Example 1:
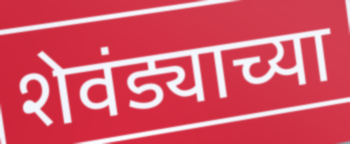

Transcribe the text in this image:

शेवंड्याच्या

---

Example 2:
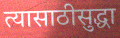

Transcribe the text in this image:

त्यासाठीसुद्धा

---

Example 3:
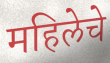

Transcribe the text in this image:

महिलेचे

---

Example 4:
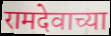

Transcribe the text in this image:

रामदेवाच्या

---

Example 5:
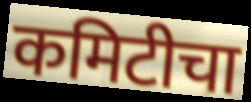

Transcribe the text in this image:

कमिटीचा